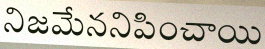
నిజమేననిపించాయి